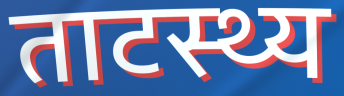
ताटस्थ्य